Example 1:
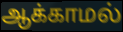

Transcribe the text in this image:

ஆக்காமல்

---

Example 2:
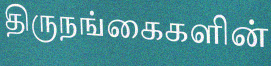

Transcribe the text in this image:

திருநங்கைகளின்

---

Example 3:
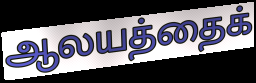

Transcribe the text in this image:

ஆலயத்தைக்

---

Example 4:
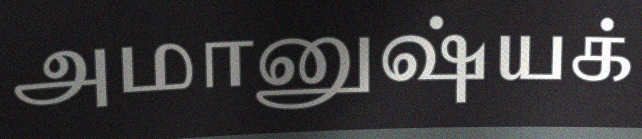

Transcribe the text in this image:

அமானுஷ்யக்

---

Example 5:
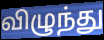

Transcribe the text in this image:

விழுந்து